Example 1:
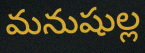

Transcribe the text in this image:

మనుషుల్ల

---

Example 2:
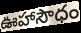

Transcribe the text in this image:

ఊహాసౌధం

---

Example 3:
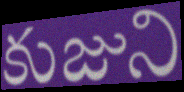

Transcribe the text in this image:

కుజుని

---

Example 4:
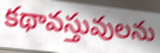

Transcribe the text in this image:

కథావస్తువులను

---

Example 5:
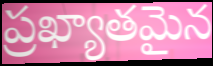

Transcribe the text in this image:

ప్రఖ్యాతమైన